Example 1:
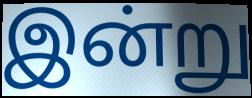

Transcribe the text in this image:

இன்று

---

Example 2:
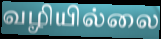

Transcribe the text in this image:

வழியில்லை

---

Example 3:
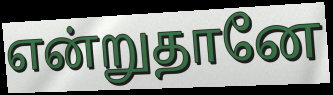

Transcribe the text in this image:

என்றுதானே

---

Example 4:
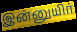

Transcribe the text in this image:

இன்னுயிர்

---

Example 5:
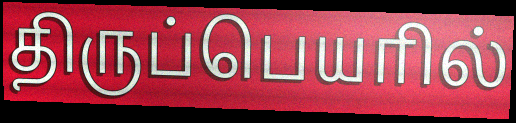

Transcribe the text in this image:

திருப்பெயரில்